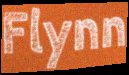
Flynn